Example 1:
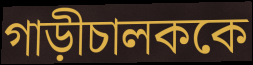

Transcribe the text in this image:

গাড়ীচালককে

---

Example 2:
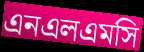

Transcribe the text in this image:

এনএলএমসি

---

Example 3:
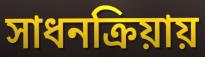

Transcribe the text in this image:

সাধনক্রিয়ায়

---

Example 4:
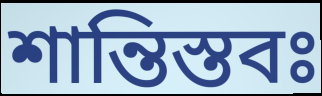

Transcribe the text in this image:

শান্তিস্তবঃ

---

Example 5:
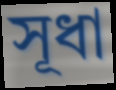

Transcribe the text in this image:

সূধা